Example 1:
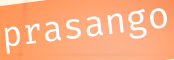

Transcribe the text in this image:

prasango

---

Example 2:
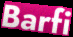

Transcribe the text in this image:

Barfi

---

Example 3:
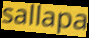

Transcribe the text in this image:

sallapa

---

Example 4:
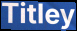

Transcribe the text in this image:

Titley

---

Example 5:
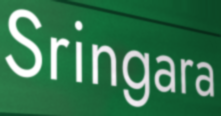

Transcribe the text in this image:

Sringara